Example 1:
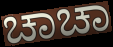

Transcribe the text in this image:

ಚಾಚಾ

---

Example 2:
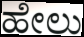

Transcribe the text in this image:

ಹೇಲು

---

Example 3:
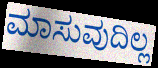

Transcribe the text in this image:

ಮಾಸುವುದಿಲ್ಲ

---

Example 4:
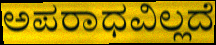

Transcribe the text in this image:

ಅಪರಾಧವಿಲ್ಲದೆ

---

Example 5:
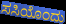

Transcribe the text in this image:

ಸಸಿಯೊಂದು